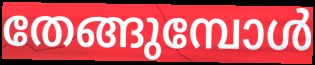
തേങ്ങുമ്പോൾ